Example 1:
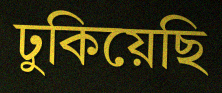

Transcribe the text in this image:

ঢুকিয়েছি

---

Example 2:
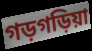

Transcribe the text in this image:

গড়গড়িয়া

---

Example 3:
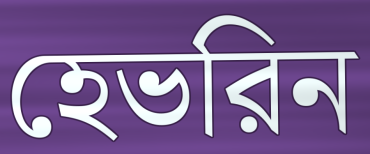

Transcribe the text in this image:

হেভরিন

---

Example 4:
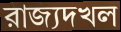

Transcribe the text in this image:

রাজ্যদখল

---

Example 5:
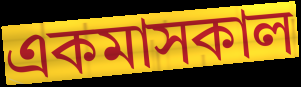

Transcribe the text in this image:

একমাসকাল